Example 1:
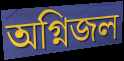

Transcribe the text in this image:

অগ্নিজল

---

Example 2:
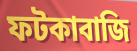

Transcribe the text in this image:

ফটকাবাজি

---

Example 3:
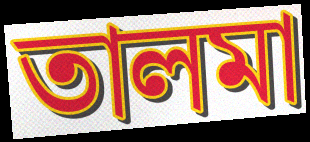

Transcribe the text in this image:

তালমা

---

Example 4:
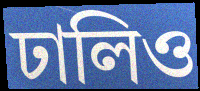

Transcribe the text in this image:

ঢালিও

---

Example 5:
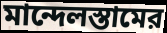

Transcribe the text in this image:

মান্দেলস্তামের